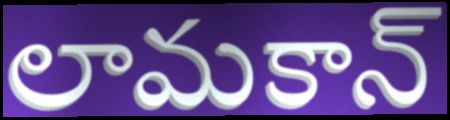
లామకాన్